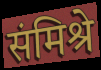
संमिश्रे